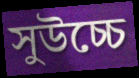
সুউচ্চে